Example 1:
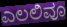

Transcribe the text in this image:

ಎಲಲಿವೂ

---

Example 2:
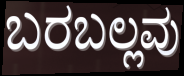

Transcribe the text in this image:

ಬರಬಲ್ಲವು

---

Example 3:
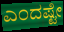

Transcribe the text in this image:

ಎಂದಷ್ಟೇ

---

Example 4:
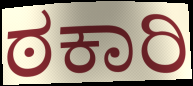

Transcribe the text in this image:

ಠಕಾರಿ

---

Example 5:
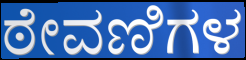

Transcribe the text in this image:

ಠೇವಣಿಗಳ